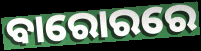
ବାରୋରରେ